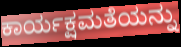
ಕಾರ್ಯಕ್ಷಮತೆಯನ್ನು